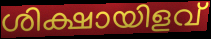
ശിക്ഷായിളവ്